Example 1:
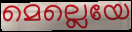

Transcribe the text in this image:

മെല്ലെയേ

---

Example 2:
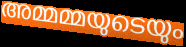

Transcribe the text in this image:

അമ്മമ്മയുടെയും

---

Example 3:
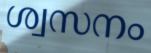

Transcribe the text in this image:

ശ്വസനം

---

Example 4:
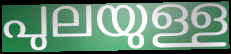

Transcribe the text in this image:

പുലയുള്ള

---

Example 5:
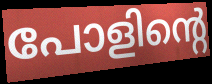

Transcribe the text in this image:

പോളിന്റെ